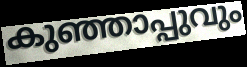
കുഞ്ഞാപ്പുവും